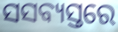
ସସବ୍ୟସ୍ତରେ